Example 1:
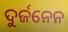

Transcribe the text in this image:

ଦୁର୍ଜନେନ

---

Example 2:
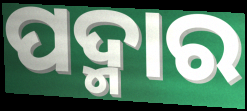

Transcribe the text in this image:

ପଦ୍ମାର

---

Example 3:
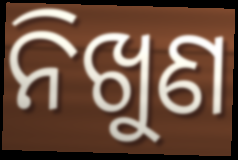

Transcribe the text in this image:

ନିଖୁଣ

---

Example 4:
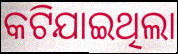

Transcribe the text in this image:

କଟିଯାଇଥିଲା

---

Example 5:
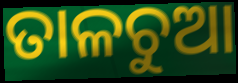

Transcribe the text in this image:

ତାଳଚୁଆ